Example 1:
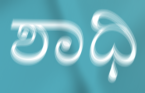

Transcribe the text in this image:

ಶಾಧಿ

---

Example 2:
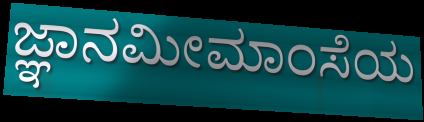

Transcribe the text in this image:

ಜ್ಞಾನಮೀಮಾಂಸೆಯ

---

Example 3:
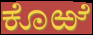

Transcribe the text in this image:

ಕೊಱೆ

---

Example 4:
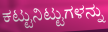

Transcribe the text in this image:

ಕಟ್ಟುನಿಟ್ಟುಗಳನ್ನು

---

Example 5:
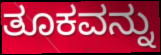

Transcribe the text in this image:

ತೂಕವನ್ನು